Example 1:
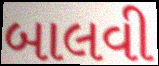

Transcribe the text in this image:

બાલવી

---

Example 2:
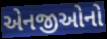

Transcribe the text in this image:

એનજીઓનો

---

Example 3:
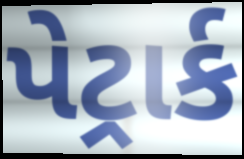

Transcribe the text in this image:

પેટ્રાર્ક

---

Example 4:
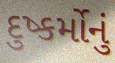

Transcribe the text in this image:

દુષ્કર્મોનું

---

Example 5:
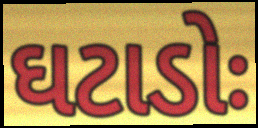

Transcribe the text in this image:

ઘટાડોઃ